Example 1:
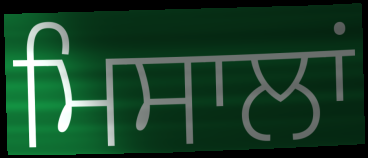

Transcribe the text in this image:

ਮਿਸਾਲਾਂ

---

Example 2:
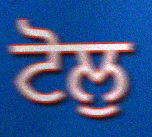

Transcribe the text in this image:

ਟੋਲੁ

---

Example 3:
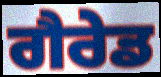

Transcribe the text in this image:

ਗੈਰੇਡ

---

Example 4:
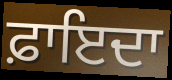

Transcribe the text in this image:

ਫ਼ਾਇਦਾ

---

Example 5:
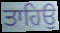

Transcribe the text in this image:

ਤਾਹਿਉ